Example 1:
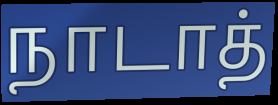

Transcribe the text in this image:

நாடாத்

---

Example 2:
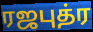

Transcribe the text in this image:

ரஜபுத்ர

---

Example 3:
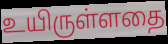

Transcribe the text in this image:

உயிருள்ளதை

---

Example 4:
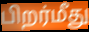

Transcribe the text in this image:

பிறர்மீது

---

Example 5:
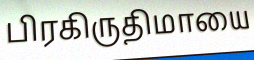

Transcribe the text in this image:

பிரகிருதிமாயை